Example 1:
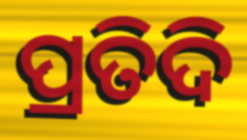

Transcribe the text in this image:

ପ୍ରତିଦି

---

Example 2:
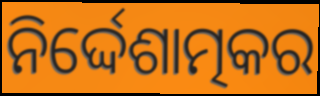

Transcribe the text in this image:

ନିର୍ଦ୍ଦେଶାତ୍ମକର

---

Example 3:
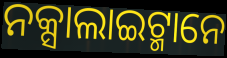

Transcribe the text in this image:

ନକ୍ସାଲାଇଟ୍ମାନେ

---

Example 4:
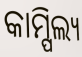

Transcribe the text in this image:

କାମ୍ପିଲ୍ୟ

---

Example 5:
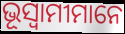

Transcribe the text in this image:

ଭୂସ୍ୱାମୀମାନେ